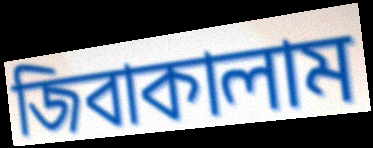
জিবাকালাম